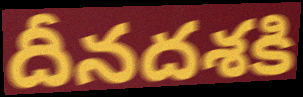
దీనదశకి